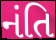
નંતિ